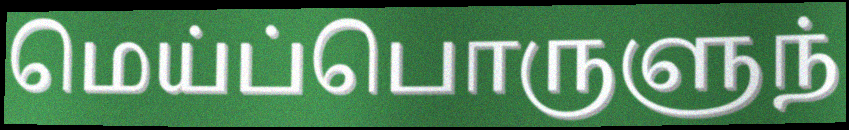
மெய்ப்பொருளுந்